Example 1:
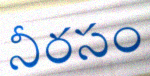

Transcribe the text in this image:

నీరసం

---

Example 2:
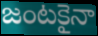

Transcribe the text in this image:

జంటకైనా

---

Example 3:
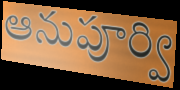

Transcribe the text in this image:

ఆనుపూర్వి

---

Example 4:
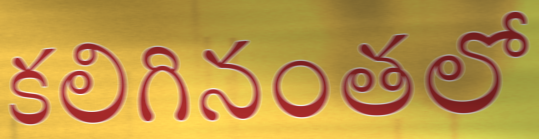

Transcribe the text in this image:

కలిగినంతలో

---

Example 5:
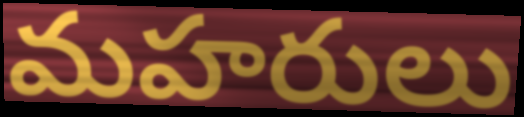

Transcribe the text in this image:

మహరులు